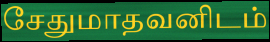
சேதுமாதவனிடம்